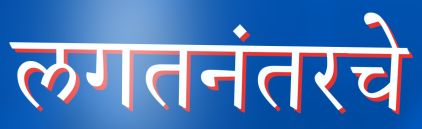
लगतनंतरचे